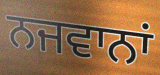
ਨਜਵਾਨਾਂ